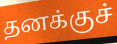
தனக்குச்